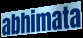
abhimata